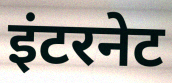
इंटरनेट